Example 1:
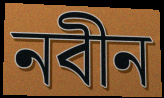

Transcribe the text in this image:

নবীন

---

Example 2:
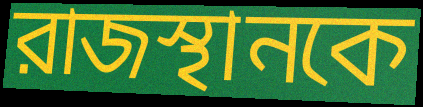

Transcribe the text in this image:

রাজস্থানকে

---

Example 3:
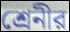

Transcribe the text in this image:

শ্রেনীর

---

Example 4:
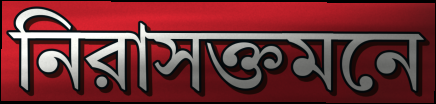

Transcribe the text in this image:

নিরাসক্তমনে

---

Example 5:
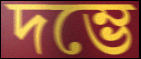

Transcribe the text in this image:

দম্ভে